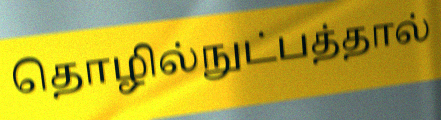
தொழில்நுட்பத்தால்